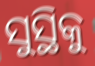
ସୁସ୍ଥିକୁ